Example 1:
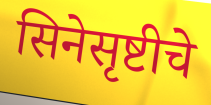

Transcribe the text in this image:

सिनेसृष्टीचे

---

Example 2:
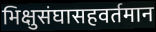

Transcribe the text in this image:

भिक्षुसंघासहवर्तमान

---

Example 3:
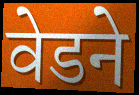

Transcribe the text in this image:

वेडने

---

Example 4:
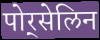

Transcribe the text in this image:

पोर्सेलिन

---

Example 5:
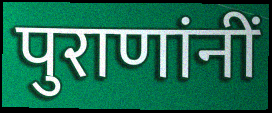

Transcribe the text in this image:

पुराणांनीं